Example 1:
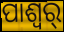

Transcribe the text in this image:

ପାଶ୍ୱର୍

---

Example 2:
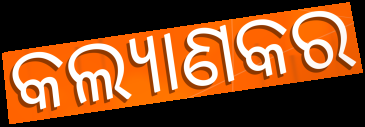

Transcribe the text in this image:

କଲ୍ୟାଣକର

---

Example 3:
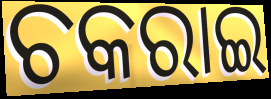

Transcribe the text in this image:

ଚକରାଇ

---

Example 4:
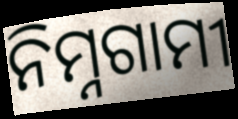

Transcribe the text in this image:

ନିମ୍ନଗାମୀ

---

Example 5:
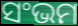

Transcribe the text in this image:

ସଂଭମ